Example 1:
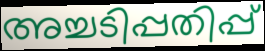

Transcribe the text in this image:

അച്ചടിപ്പതിപ്പ്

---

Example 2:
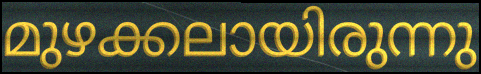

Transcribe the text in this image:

മുഴക്കലായിരുന്നു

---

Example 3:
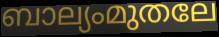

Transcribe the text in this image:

ബാല്യംമുതലേ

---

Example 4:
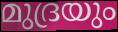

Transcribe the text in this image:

മുദ്രയും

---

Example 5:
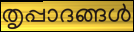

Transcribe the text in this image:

തൃപ്പാദങ്ങൾ